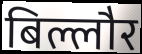
बिल्लौर